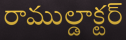
రాముల్డాక్టర్